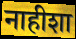
नाहीशा